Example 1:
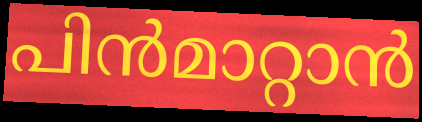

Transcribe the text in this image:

പിൻമാറ്റാൻ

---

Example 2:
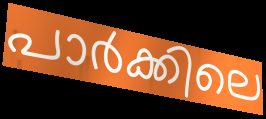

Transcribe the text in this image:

പാർക്കിലെ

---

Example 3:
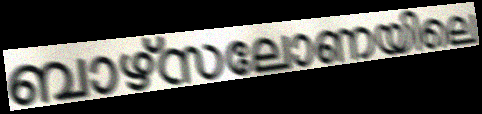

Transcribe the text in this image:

ബാഴ്സലോണയിലെ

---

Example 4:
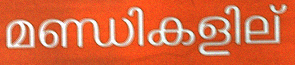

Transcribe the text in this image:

മണ്ഡികളില്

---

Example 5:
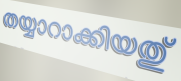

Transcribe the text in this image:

തയ്യാറാക്കിയതു്